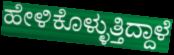
ಹೇಳಿಕೊಳ್ಳುತ್ತಿದ್ದಾಳೆ